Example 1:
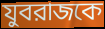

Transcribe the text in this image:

যুবরাজকে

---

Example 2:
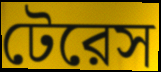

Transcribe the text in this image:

টেরেস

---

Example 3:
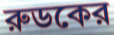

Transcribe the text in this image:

রুডকের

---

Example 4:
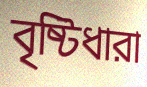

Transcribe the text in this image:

বৃষ্টিধারা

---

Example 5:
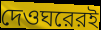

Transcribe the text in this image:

দেওঘরেরই